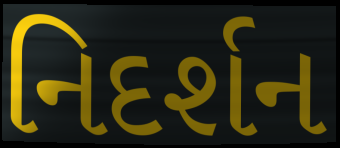
નિદર્શન